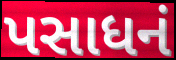
પસાધનં